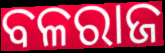
ବଳରାଜ